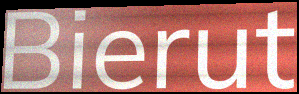
Bierut